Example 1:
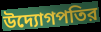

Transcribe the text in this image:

উদ্যোগপতির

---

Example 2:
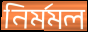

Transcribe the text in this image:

নির্মমল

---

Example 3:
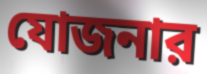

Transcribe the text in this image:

যোজনার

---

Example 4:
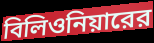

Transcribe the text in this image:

বিলিওনিয়ারের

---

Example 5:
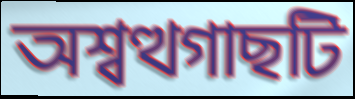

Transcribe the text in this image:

অশ্বত্থগাছটি